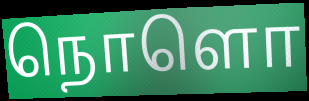
நொளொ